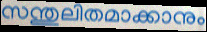
സന്തുലിതമാക്കാനും